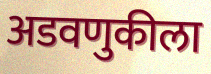
अडवणुकीला